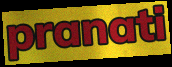
pranati